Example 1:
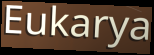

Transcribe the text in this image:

Eukarya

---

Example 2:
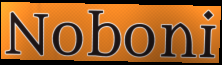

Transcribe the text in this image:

Noboni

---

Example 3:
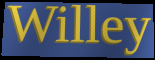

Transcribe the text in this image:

Willey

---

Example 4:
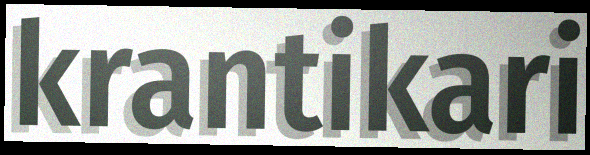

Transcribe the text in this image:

krantikari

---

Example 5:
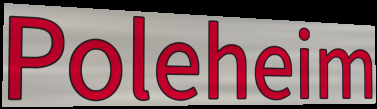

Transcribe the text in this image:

Poleheim